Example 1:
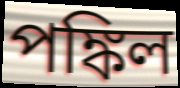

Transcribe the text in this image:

পঙ্কিল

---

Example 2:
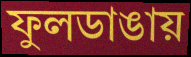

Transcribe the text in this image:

ফুলডাঙায়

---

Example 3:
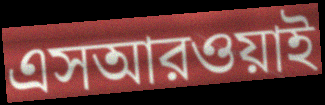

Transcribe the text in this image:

এসআরওয়াই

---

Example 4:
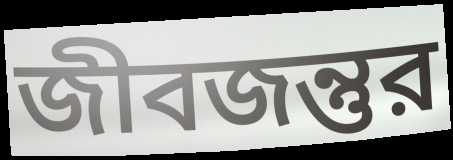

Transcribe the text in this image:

জীবজন্তুর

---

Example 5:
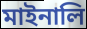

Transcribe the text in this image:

মাইনালি